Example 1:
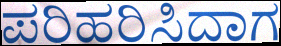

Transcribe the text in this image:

ಪರಿಹರಿಸಿದಾಗ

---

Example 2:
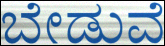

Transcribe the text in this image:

ಬೇಡುವೆ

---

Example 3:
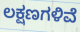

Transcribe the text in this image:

ಲಕ್ಷಣಗಳಿವೆ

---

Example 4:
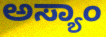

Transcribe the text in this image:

ಅಸ್ಯಾಂ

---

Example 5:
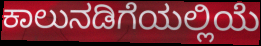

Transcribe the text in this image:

ಕಾಲುನಡಿಗೆಯಲ್ಲಿಯೆ